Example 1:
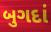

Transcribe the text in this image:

બુગદાં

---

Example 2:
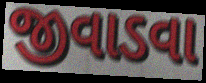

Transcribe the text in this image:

જીવાડવા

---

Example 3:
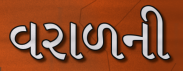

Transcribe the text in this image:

વરાળની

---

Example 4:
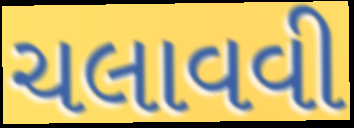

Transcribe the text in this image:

ચલાવવી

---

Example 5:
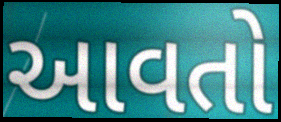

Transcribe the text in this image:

આવતો